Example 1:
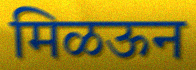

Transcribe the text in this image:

मिळऊन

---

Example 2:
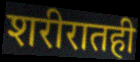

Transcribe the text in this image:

शरीरातही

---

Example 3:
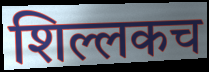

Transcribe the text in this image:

शिल्लकच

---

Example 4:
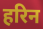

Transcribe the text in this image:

हरिन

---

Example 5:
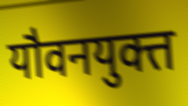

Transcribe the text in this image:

यौवनयुक्त